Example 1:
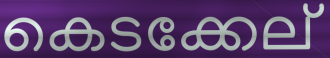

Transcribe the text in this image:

കെടക്കേല്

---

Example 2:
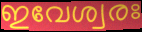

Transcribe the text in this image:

ഇവേശ്വരഃ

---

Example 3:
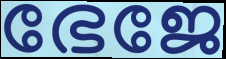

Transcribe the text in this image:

ഭേജേ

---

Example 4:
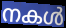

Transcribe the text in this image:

നകൾ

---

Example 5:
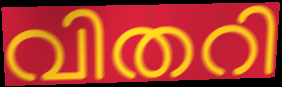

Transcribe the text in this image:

വിതറി